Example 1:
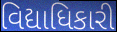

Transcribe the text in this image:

વિદ્યાધિકારી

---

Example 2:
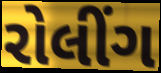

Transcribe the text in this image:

રોલીંગ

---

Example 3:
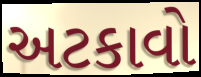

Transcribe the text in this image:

અટકાવો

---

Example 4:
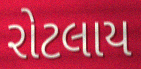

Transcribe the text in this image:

રોટલાય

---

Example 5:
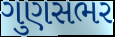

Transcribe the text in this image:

ગુણસભર